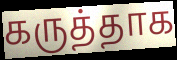
கருத்தாக